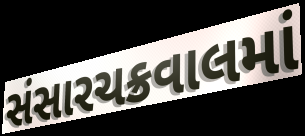
સંસારચક્રવાલમાં